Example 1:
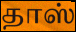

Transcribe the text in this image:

தாஸ்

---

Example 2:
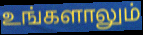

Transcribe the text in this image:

உங்களாலும்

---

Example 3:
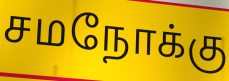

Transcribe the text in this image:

சமநோக்கு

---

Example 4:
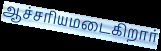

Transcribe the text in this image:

ஆச்சரியமடைகிறார்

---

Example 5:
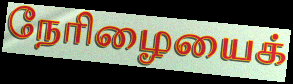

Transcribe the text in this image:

நேரிழையைக்